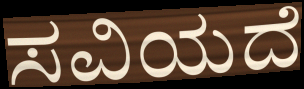
ಸವಿಯದೆ